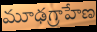
మూఢగ్రాహేణ